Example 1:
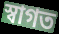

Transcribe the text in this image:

স্বাগত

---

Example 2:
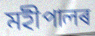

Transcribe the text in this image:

মহীপালৰ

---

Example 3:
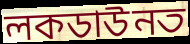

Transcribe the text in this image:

লকডাউনত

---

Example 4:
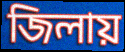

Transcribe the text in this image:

জিলায়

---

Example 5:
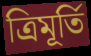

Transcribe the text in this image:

ত্ৰিমূৰ্তি